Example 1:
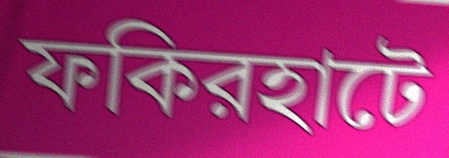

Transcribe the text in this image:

ফকিরহাটে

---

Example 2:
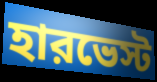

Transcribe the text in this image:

হারভেস্ট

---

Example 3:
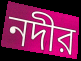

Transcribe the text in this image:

নদীর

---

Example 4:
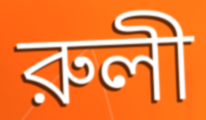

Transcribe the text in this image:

রুলী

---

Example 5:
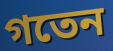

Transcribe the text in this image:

গতেন